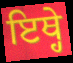
ਇਥ੍ਹੇ